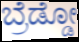
ಬ್ರೆಡ್ಡೋ